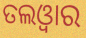
ତଲଓ୍ୱାର